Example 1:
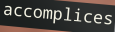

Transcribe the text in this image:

accomplices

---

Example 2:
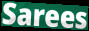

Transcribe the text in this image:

Sarees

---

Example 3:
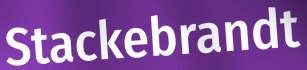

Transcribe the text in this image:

Stackebrandt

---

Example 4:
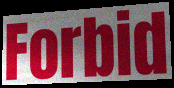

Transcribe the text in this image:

Forbid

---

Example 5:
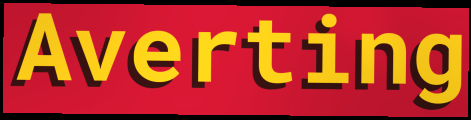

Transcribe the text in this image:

Averting